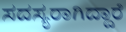
ಸದಸ್ಯರಾಗಿದ್ದಾರೆ